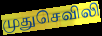
முதுசெவிலி